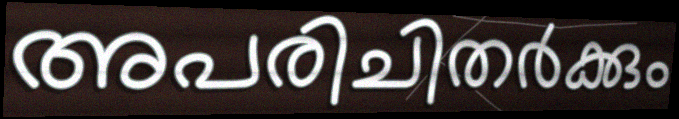
അപരിചിതർക്കും